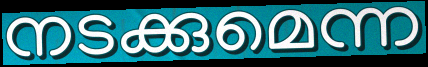
നടക്കുമെന്ന